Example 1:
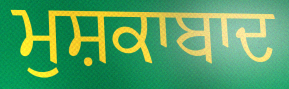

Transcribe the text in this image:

ਮੁਸ਼ਕਾਬਾਦ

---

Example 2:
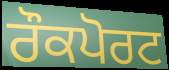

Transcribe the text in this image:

ਰੌਕਪੋਰਟ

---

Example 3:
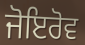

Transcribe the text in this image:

ਜੋਇਰੋਵ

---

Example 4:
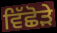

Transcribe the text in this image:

ਵਿੱਛੋੜੇ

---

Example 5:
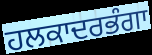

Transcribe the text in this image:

ਹਲਕਾਦਰਭੰਗਾ